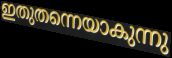
ഇതുതന്നെയാകുന്നു